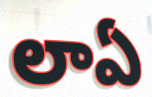
లాఏ